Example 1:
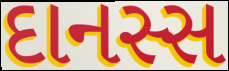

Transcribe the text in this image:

દાનસ્સ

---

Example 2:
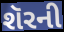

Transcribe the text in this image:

શૅરની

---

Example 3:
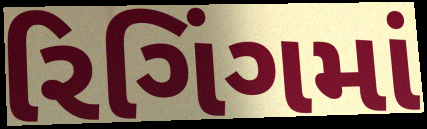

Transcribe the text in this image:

રિગિંગમાં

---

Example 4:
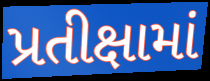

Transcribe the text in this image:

પ્રતીક્ષામાં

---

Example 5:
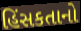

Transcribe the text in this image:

હિંસકતાનો